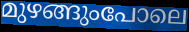
മുഴങ്ങുംപോലെ